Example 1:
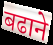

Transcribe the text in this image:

बढाने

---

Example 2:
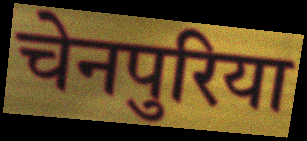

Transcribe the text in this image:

चेनपुरिया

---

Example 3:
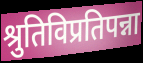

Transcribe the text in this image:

श्रुतिविप्रतिपन्ना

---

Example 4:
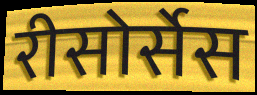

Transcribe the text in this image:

रीसोर्सेस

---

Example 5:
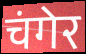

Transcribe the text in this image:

चंगेर